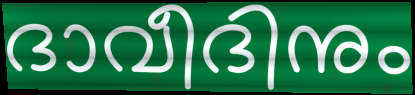
ദാവീദിനും